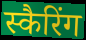
स्कैरिंग